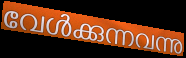
വേൾക്കുന്നവന്നു